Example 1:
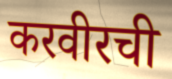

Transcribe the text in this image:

करवीरची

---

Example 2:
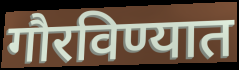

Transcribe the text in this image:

गौरविण्यात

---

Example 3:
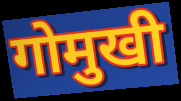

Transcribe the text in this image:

गोमुखी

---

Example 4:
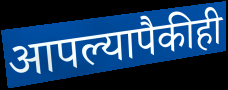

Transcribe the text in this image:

आपल्यापैकीही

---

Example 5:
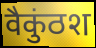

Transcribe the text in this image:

वैकुंठश